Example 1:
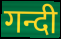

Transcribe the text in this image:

गन्दी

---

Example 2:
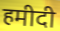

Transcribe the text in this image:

हमीदी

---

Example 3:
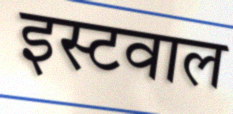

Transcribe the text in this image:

इस्टवाल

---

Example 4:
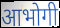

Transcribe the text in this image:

आभोगी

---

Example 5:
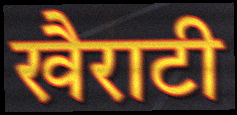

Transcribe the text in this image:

खैराटी